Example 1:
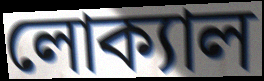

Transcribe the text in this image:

লোক্যাল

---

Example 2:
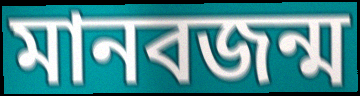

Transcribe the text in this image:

মানবজন্ম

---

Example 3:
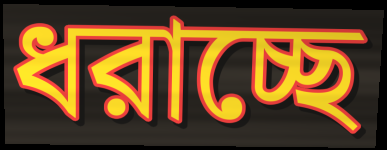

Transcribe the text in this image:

ধরাচ্ছে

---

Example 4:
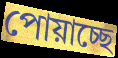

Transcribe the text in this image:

পোয়াচ্ছে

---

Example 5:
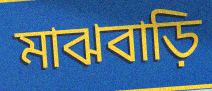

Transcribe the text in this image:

মাঝবাড়ি